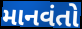
માનવંતો